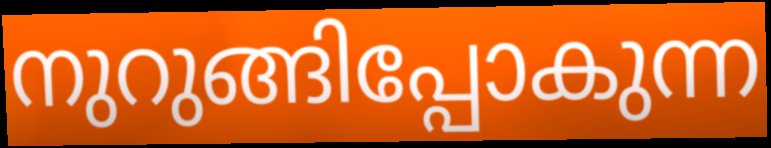
നുറുങ്ങിപ്പോകുന്ന